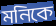
মনিকে